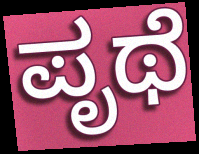
ಪೃಥೆ